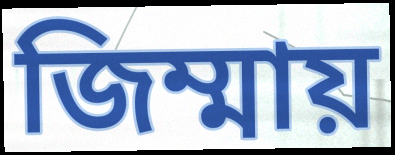
জিম্মায়